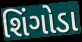
શિંગોડા